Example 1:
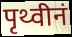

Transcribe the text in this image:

पृथ्वीनं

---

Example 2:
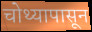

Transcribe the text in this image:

चोथ्यापासून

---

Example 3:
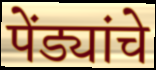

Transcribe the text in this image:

पेंड्यांचे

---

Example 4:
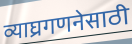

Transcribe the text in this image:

व्याघ्रगणनेसाठी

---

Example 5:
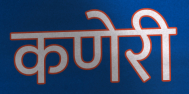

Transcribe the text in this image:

कणेरी